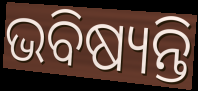
ଭବିଷ୍ୟନ୍ତି